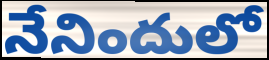
నేనిందులో